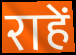
राहें